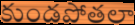
కుండపోతలా